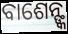
ବାଶେନ୍ଙ୍କ